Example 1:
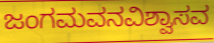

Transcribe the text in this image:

ಜಂಗಮವನವಿಶ್ವಾಸವ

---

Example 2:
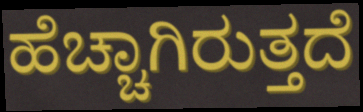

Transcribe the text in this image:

ಹೆಚ್ಚಾಗಿರುತ್ತದೆ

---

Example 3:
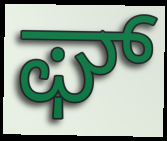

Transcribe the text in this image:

ಘ್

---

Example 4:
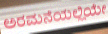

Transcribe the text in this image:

ಅರಮನೆಯಲ್ಲಿಯೇ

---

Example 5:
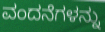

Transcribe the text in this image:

ವಂದನೆಗಳನ್ನು